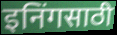
इनिंगसाठी